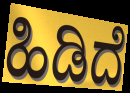
ಹಿಡಿದೆ